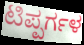
ಟಿಪ್ಪರ್ಗಳ